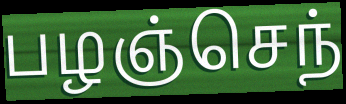
பழஞ்செந்